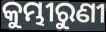
କୁମ୍ଭୀରୁଣୀ